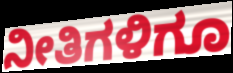
ನೀತಿಗಳಿಗೂ